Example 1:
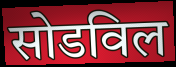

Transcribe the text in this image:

सोडविल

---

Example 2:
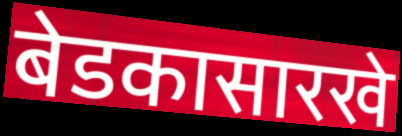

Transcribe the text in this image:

बेडकासारखे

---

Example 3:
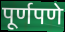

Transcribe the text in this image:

पूर्णपणे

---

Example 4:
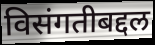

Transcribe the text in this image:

विसंगतीबद्दल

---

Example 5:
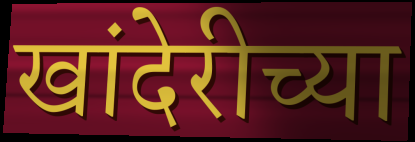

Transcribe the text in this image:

खांदेरीच्या